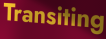
Transiting